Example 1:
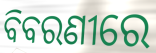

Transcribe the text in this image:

ବିବରଣୀରେ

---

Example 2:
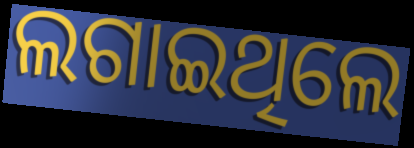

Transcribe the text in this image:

ଲଗାଇଥିଲେ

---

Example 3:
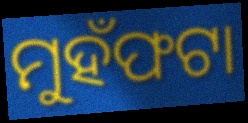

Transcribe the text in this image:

ମୁହଁଫଟା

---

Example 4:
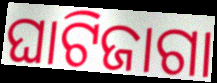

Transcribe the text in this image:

ଘାଟିଜାଗା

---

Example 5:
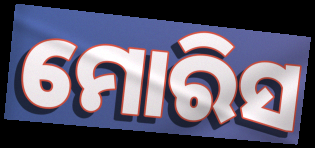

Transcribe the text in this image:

ମୋରିସ